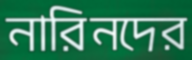
নারিনদের